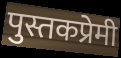
पुस्तकप्रेमी